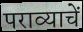
पराव्याचें